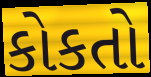
કોકતો